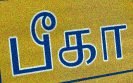
பீகா